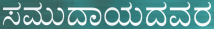
ಸಮುದಾಯದವರ